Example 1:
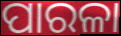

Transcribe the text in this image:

ପାରଳା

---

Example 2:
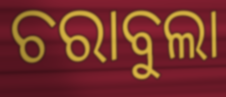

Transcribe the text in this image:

ଚରାବୁଲା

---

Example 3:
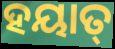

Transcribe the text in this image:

ହୟାତ୍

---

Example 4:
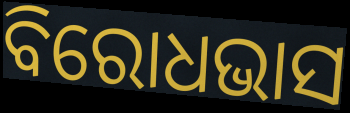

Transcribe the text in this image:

ବିରୋଧଭାସ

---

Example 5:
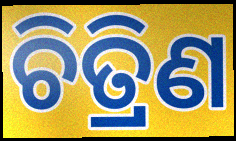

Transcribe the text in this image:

ଚିତ୍ରିଣ